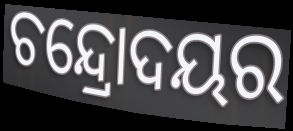
ଚନ୍ଦ୍ରୋଦୟର